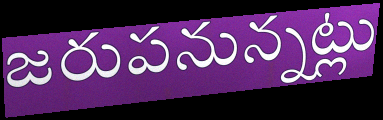
జరుపనున్నట్లు